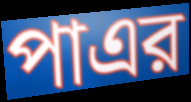
পাএর